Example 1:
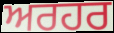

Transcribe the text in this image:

ਅਰਹਰ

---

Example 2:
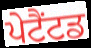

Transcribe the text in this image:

ਪੇਟੈਂਟਡ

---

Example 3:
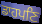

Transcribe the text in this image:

ਡਾਹਪਣਿ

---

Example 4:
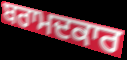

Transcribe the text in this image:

ਬਰਾਮਦਕਾਰ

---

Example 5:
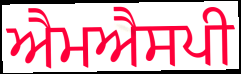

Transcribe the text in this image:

ਐਮਐਸਪੀ